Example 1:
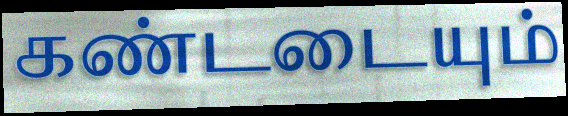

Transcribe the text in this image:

கண்டடையும்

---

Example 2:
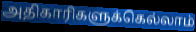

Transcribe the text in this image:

அதிகாரிகளுக்கெல்லாம்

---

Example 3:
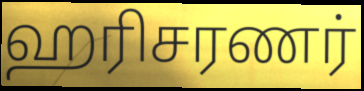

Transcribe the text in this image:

ஹரிசரணர்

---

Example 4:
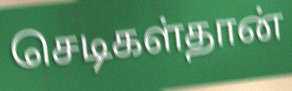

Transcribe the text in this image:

செடிகள்தான்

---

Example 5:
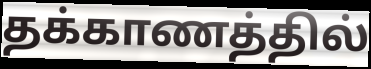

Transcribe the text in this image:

தக்காணத்தில்